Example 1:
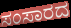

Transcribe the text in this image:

ಸಂಸಾರದ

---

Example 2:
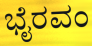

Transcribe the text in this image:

ಭೈರವಂ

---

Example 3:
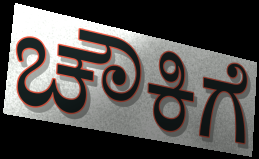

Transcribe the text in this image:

ಚೌಕಿಗೆ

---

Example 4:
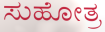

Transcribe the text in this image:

ಸುಹೋತ್ರ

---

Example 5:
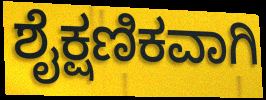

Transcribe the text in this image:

ಶೈಕ್ಷಣಿಕವಾಗಿ